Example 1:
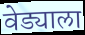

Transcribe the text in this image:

वेड्याला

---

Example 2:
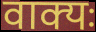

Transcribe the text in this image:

वाक्यः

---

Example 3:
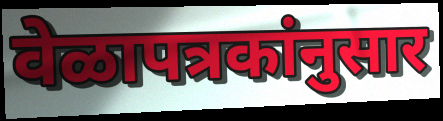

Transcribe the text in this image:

वेळापत्रकांनुसार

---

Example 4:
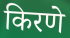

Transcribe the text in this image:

किरणे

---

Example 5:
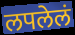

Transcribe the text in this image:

लपलेलं